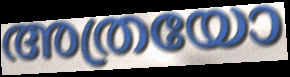
അത്രയോ